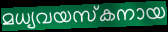
മധ്യവയസ്കനായ